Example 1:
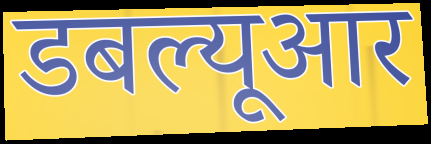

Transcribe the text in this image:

डबल्यूआर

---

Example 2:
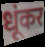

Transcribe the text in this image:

धूंकर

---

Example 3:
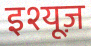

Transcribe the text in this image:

इश्यूज़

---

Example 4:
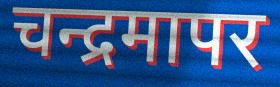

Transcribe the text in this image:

चन्द्रमापर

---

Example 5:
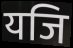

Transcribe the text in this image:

यजि